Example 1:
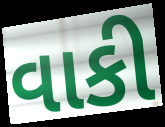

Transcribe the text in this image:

વાકી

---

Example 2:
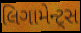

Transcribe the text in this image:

લિગામેન્ટ્સ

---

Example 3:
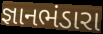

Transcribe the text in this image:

જ્ઞાનભંડારા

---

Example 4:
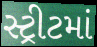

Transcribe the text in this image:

સ્ટ્રીટમાં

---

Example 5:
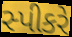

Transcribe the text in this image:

સ્પીકરે